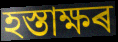
হস্তাক্ষৰ